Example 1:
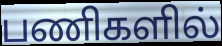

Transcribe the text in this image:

பணிகளில்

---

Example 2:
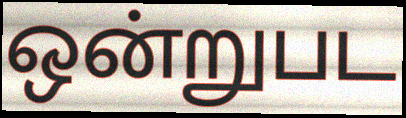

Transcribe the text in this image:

ஒன்றுபட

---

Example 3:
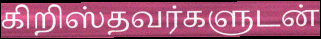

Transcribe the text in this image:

கிறிஸ்தவர்களுடன்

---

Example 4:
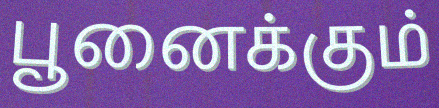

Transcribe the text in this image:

பூனைக்கும்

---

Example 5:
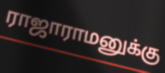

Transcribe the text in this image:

ராஜாராமனுக்கு